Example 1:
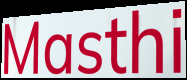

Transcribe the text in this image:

Masthi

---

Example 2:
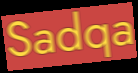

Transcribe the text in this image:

Sadqa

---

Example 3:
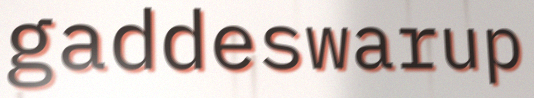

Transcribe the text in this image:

gaddeswarup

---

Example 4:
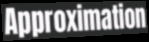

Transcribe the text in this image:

Approximation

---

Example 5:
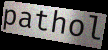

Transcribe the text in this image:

pathol